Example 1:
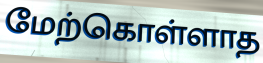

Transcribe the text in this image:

மேற்கொள்ளாத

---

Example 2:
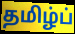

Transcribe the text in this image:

தமிழ்ப்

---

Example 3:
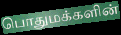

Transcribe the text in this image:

பொதுமக்களின்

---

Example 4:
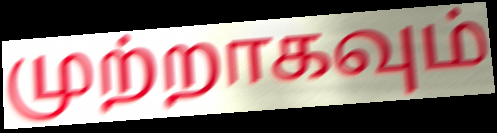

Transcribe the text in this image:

முற்றாகவும்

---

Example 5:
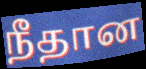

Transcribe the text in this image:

நீதான